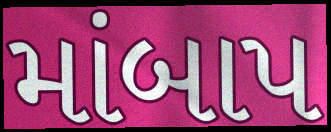
માંબાપ